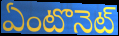
ఏంటొనెట్